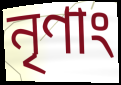
নৃণাং